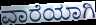
ವಾರೆಯಾಗಿ